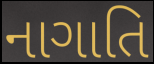
નાગાતિ